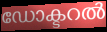
ഡോക്ടറൽ